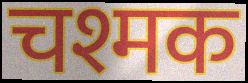
चश्मक